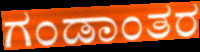
ಗಂಡಾಂತರ